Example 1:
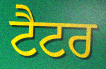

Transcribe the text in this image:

ਟੈਟਰ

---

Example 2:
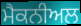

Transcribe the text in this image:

ਮੈਕਨੀਅਲ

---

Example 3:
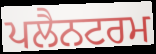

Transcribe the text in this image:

ਪਲੈਨਟਰਮ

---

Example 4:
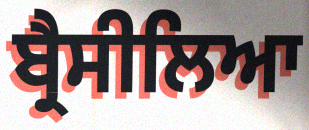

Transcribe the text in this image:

ਬ੍ਰੈਸੀਲਿਆ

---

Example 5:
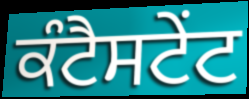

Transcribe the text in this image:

ਕੰਟੈਸਟੇਂਟ